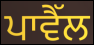
ਪਾਵੈੱਲ